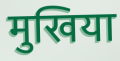
मुखिया